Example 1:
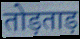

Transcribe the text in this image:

तोड़ताड़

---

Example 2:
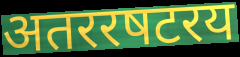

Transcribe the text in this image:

अतररषटरय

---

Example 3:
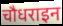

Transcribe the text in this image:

चौधराइन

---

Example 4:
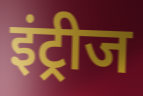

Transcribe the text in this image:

इंट्रीज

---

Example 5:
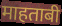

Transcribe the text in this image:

माहताबी